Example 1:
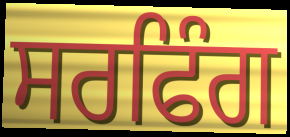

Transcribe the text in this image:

ਸਰਫਿੰਗ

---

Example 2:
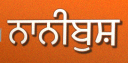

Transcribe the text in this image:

ਨਾਨੀਬੁਸ਼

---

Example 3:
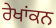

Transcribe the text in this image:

ਰੇਖਾਂਕਨ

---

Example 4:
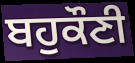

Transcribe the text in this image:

ਬਹੁਕੌਣੀ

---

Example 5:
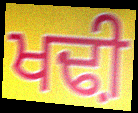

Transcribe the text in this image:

ਖਢ਼ੀ